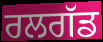
ਰਲਗੱਡ